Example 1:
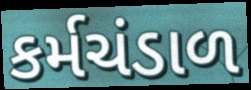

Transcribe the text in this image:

કર્મચંડાળ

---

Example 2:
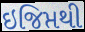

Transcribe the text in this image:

ઇજિપ્તથી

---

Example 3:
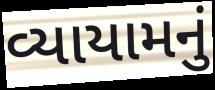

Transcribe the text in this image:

વ્યાયામનું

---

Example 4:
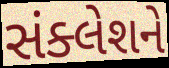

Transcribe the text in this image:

સંક્લેશને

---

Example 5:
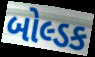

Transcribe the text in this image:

બોલ્ડક